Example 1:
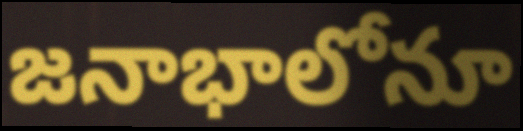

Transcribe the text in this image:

జనాభాలోనూ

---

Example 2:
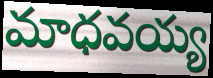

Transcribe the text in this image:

మాధవయ్య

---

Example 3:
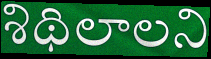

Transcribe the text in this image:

శిథిలాలని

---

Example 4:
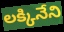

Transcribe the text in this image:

లక్కినేని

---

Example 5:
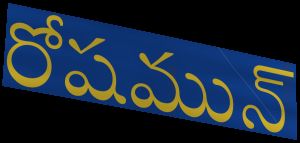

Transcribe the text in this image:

రోషమున్